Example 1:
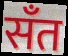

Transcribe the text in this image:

सँत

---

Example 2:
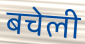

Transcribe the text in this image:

बचेली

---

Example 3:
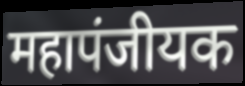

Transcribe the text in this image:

महापंजीयक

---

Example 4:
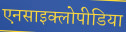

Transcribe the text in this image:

एनसाइक्लोपीडिया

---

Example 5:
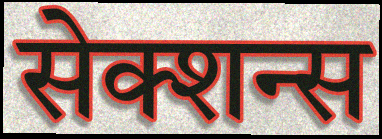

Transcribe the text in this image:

सेक्शन्स